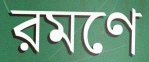
রমণে